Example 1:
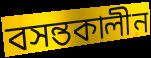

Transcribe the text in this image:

বসন্তকালীন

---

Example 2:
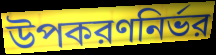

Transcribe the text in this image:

উপকরণনির্ভর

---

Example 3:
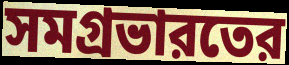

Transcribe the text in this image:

সমগ্রভারতের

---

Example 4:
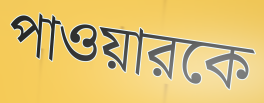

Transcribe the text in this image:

পাওয়ারকে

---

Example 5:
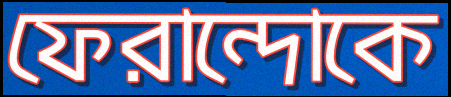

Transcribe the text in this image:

ফেরান্দোকে